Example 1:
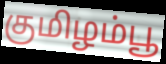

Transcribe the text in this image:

குமிழம்பூ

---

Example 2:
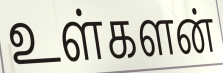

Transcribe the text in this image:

உள்களன்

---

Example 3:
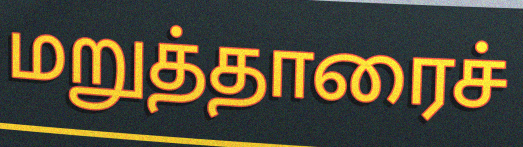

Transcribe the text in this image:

மறுத்தாரைச்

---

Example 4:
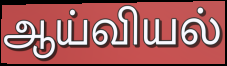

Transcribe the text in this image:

ஆய்வியல்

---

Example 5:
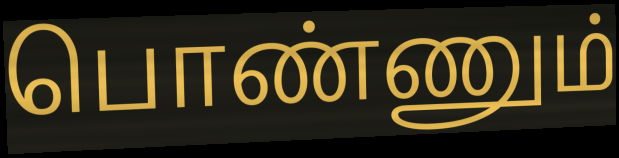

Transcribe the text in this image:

பொண்ணும்